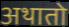
अथातो